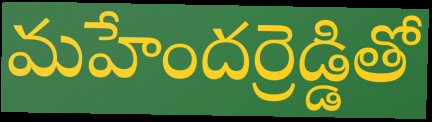
మహేందర్రెడ్డితో